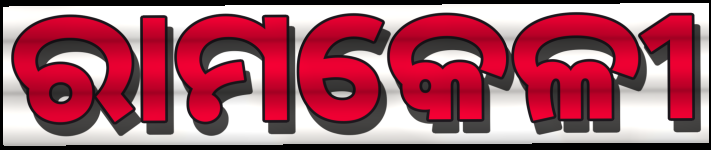
ରାମକେଳୀ